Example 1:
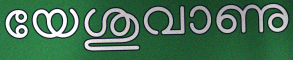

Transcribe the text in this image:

യേശുവാണു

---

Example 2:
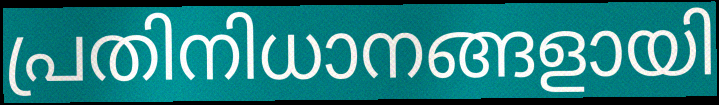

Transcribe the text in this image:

പ്രതിനിധാനങ്ങളായി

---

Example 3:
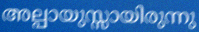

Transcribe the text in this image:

അല്പായുസ്സായിരുന്നു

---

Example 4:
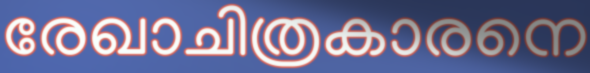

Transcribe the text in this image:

രേഖാചിത്രകാരനെ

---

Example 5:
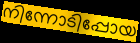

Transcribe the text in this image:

നിന്നോടിപ്പോയ